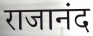
राजानंद